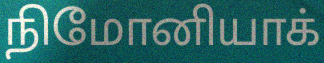
நிமோனியாக்